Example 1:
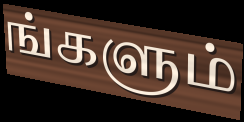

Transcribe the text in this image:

ங்களும்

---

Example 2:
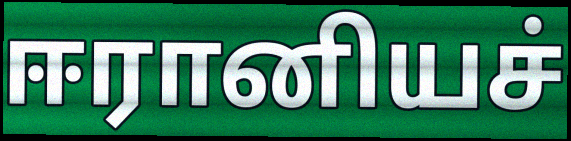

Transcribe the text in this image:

ஈரானியச்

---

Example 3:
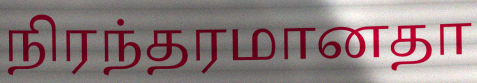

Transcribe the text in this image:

நிரந்தரமானதா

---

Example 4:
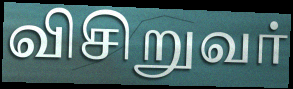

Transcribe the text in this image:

விசிறுவர்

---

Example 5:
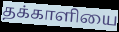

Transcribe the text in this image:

தக்காளியை